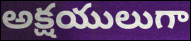
అక్షయులుగా